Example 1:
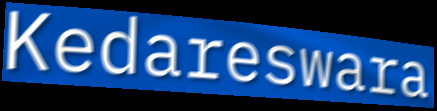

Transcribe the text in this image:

Kedareswara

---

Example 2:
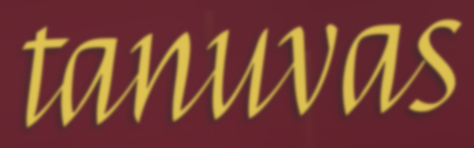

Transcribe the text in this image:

tanuvas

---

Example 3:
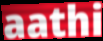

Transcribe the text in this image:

aathi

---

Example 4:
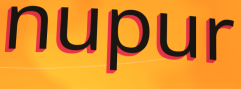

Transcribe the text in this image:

nupur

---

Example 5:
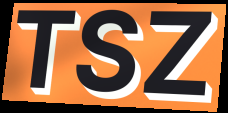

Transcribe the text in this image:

TSZ